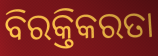
ବିରକ୍ତିକରତା